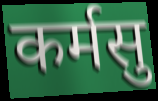
कर्मसु